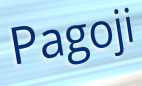
Pagoji